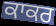
ਕਾਕਰ